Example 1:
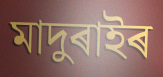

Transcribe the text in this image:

মাদুৰাইৰ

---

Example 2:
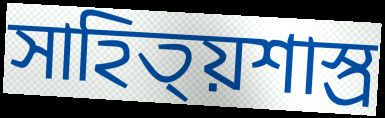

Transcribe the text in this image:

সাহিত্য়শাস্ত্ৰ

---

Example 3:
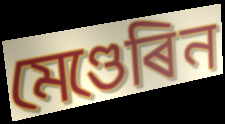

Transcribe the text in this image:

মেণ্ডেৰিন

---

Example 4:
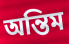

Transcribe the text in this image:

অন্তিম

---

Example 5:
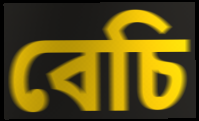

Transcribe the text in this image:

বেচি